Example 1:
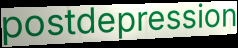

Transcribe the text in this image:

postdepression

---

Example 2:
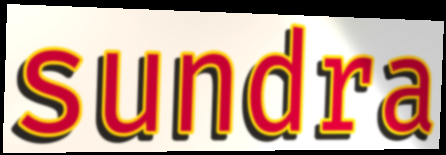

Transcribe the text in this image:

sundra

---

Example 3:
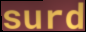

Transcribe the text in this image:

surd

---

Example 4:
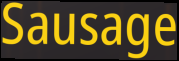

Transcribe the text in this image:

Sausage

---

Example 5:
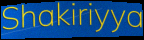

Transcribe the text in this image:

Shakiriyya